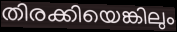
തിരക്കിയെങ്കിലും